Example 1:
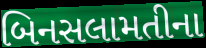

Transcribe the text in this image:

બિનસલામતીના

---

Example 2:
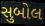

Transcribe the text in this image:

સુબોલ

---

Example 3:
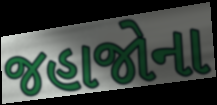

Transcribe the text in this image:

જહાજોના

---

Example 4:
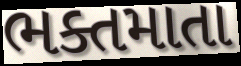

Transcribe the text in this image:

ભક્તમાતા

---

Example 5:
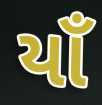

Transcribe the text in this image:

યાઁ